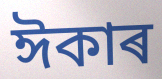
ঈকাৰ